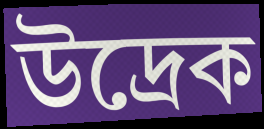
উদ্ৰেক